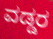
ವಡ್ಡರ